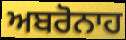
ਅਬਰੋਨਾਹ